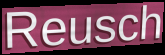
Reusch